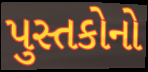
પુસ્તકોનો